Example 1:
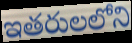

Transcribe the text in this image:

ఇతరులలోని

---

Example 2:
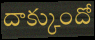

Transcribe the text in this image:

దాక్కుందో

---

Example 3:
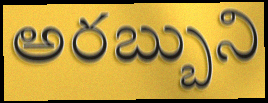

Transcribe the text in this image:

అరబ్బుని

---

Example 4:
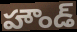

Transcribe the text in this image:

హౌండ్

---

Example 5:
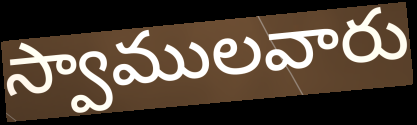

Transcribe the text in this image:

స్వాములవారు